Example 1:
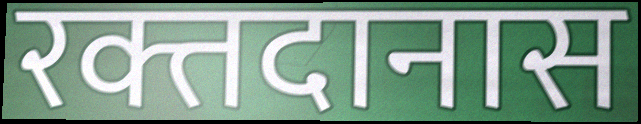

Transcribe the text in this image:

रक्तदानास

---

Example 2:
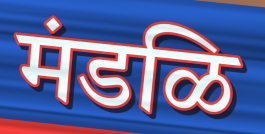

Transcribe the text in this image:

मंडळि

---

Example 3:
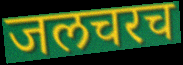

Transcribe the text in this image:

जलचरच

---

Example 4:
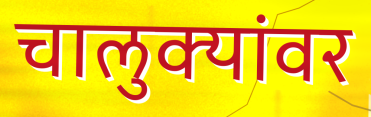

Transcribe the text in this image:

चालुक्यांवर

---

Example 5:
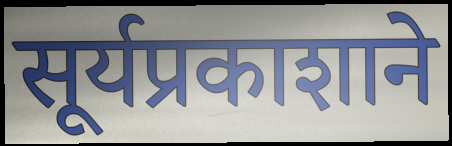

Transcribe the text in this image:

सूर्यप्रकाशाने